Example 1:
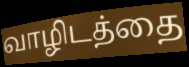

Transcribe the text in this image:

வாழிடத்தை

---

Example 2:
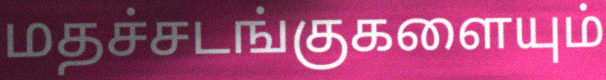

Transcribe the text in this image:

மதச்சடங்குகளையும்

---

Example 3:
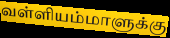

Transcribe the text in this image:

வள்ளியம்மாளுக்கு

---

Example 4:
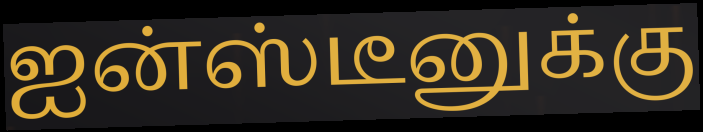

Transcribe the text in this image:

ஐன்ஸ்டீனுக்கு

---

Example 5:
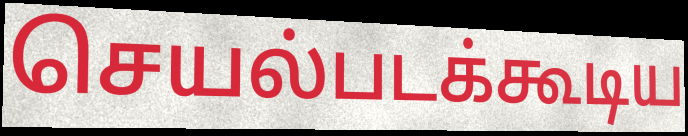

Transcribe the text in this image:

செயல்படக்கூடிய